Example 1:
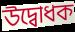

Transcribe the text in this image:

উদ্বোধক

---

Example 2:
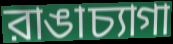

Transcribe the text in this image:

রাঙাচ্যাগা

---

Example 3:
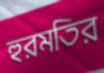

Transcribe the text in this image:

হুরমতির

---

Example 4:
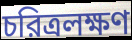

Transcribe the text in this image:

চরিত্রলক্ষণ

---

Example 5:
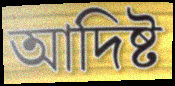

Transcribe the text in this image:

আদিষ্ট